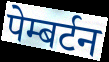
पेम्बर्टन